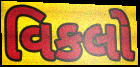
વિકલો